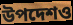
উপদেশও